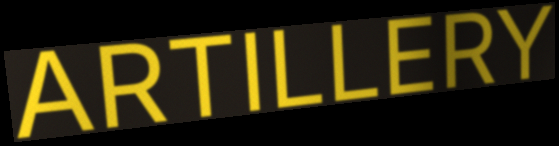
ARTILLERY